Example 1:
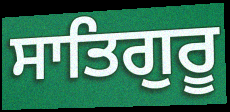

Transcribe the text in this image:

ਸਾਤਿਗੁਰੂ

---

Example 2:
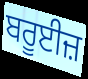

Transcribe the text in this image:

ਬਰੂਈਜ਼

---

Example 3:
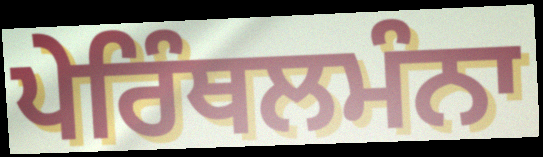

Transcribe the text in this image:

ਪੇਰਿੰਥਲਮੰਨਾ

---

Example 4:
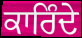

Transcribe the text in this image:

ਕਾਰਿੰਦੇ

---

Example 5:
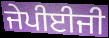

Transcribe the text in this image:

ਜੇਪੀਈਜੀ